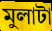
মুলাটা